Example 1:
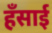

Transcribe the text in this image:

हँसाई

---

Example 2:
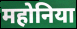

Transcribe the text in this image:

महोनिया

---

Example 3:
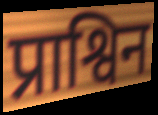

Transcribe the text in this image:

प्राश्विन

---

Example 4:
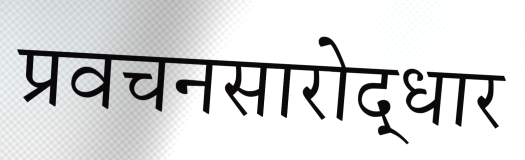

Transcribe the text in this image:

प्रवचनसारोद्धार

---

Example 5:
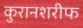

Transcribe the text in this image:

कुरानशरीफ